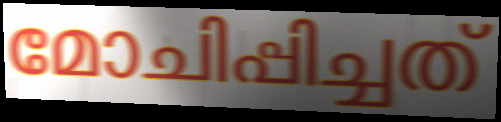
മോചിപ്പിച്ചത്